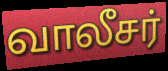
வாலீசர்